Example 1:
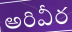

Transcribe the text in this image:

అరివీర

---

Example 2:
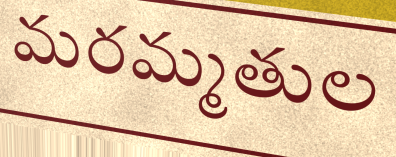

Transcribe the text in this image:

మరమ్మతుల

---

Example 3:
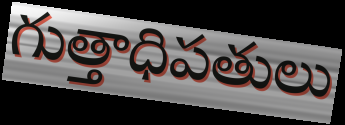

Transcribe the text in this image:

గుత్తాధిపతులు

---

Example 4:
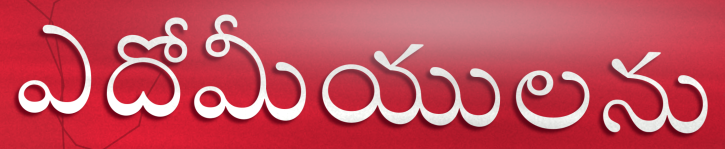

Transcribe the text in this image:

ఎదోమీయులను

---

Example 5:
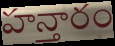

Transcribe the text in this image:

హన్తారం